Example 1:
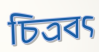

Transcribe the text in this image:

চিত্ৰবৎ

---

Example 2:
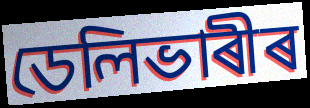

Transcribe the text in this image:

ডেলিভাৰীৰ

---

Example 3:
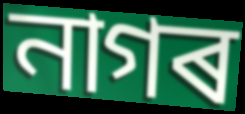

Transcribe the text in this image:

নাগৰ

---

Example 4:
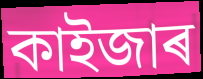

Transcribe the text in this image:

কাইজাৰ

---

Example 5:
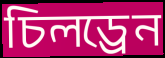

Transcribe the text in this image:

চিলড্ৰেন